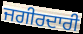
ਜਗੀਰਦਾਰੀ